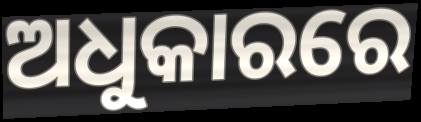
ଅଧୁକାରରେ